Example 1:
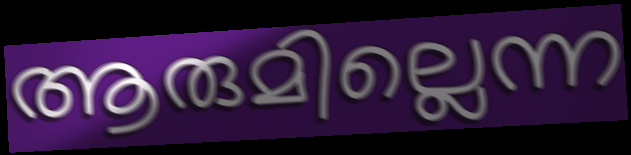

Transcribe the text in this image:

ആരുമില്ലെന്ന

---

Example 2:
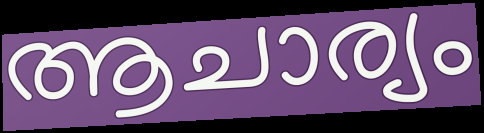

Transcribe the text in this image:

ആചാര്യം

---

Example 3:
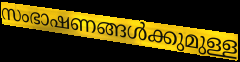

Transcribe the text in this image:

സംഭാഷണങ്ങൾക്കുമുള്ള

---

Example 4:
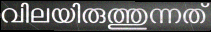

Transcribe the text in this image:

വിലയിരുത്തുന്നത്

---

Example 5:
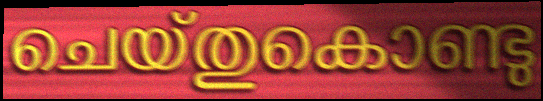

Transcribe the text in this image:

ചെയ്തുകൊണ്ടു